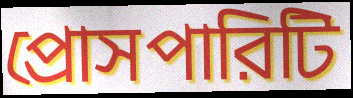
প্রোসপারিটি